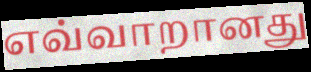
எவ்வாறானது